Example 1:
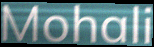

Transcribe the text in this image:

Mohali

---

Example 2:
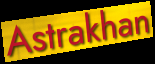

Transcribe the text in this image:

Astrakhan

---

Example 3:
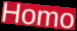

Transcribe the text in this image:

Homo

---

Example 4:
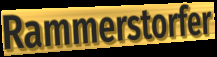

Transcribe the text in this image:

Rammerstorfer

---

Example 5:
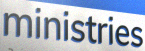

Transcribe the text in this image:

ministries